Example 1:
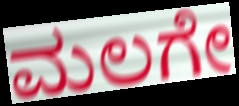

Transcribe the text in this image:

ಮಲಗೇ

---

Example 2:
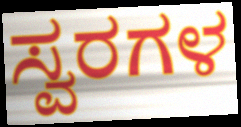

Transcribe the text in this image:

ಸ್ವರಗಳ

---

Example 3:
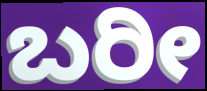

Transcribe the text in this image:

ಬರೀ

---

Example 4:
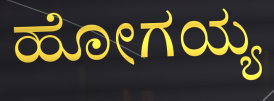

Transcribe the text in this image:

ಹೋಗಯ್ಯ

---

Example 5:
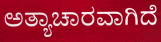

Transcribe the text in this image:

ಅತ್ಯಾಚಾರವಾಗಿದೆ